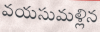
వయసుమళ్లిన